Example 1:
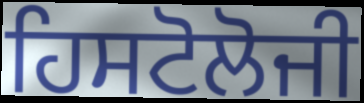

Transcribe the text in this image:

ਹਿਸਟੋਲੋਜੀ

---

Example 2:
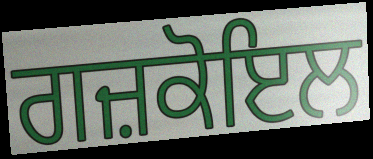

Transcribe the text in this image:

ਗਜ਼ਕੋਇਲ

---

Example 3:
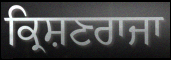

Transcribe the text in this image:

ਕ੍ਰਿਸ਼ਣਰਾਜਾ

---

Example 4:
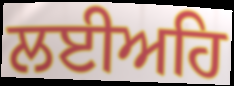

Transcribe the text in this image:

ਲਈਅਹਿ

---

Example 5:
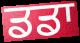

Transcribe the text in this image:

ਡਡਾ